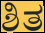
ಶಿತ